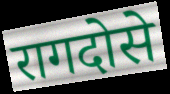
रागदोसे